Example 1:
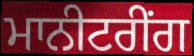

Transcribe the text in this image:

ਮਾਨੀਟਰੀਂਗ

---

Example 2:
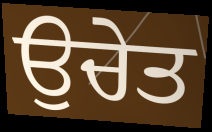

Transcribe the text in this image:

ਉਚੇਤ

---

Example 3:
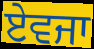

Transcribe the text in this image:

ਏਵਜਾ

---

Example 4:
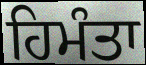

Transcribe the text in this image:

ਹਿਮੰਤਾ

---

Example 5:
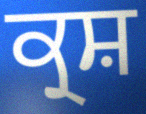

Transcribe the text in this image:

ਕ੍ਰਸ਼